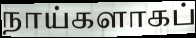
நாய்களாகப்